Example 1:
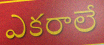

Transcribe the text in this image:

ఎకరాలే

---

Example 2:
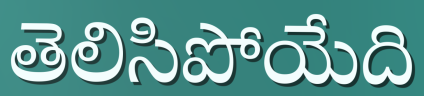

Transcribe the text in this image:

తెలిసిపోయేది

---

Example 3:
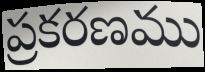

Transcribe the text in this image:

ప్రకరణము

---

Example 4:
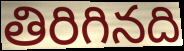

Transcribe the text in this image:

తిరిగినది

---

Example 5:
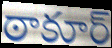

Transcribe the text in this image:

ఠాకూర్